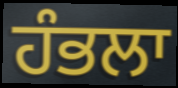
ਹੰਭਲਾ